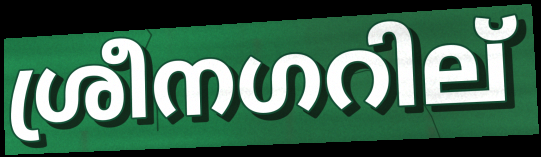
ശ്രീനഗറില്